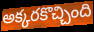
అక్కరకొచ్చింది